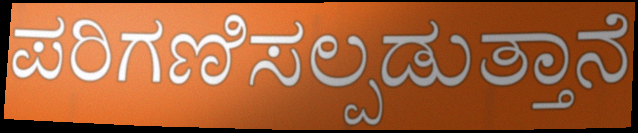
ಪರಿಗಣಿಸಲ್ಪಡುತ್ತಾನೆ